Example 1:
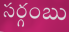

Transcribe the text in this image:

సర్గంబు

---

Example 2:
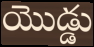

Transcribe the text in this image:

యొడ్డు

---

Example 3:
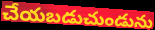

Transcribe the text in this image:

చేయబడుచుండును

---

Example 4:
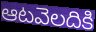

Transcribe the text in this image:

ఆటవెలదికి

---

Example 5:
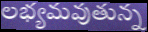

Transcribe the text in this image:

లభ్యమవుతున్న